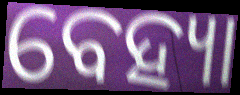
ବେହ୍ୟା